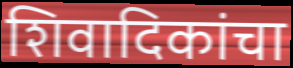
शिवादिकांचा